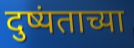
दुष्यंताच्या